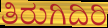
ತಿರುಗಿದಿರಿ